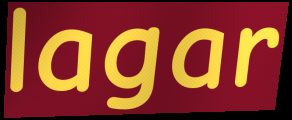
lagar